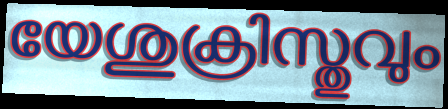
യേശുക്രിസ്തുവും